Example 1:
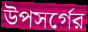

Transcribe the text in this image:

উপসর্গের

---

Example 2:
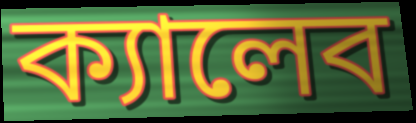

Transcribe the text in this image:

ক্যালেব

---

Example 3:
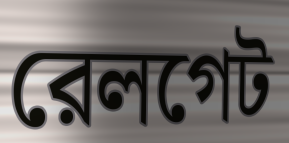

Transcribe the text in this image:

রেলগেট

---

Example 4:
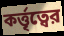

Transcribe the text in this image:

কর্ত্তৃত্বের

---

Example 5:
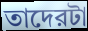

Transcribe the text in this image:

তাদেরটা